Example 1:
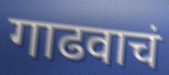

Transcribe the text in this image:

गाढवाचं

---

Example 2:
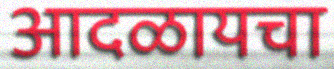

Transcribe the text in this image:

आदळायचा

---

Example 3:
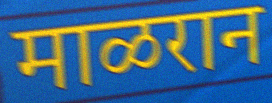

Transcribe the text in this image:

माळरान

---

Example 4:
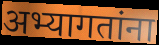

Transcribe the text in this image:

अभ्यागतांना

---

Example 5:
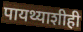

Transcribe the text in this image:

पायथ्याशीही